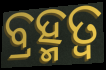
ବ୍ରହ୍ମତ୍ୱ